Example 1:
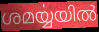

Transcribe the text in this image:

ശമൎയ്യയിൽ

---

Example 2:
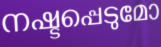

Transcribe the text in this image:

നഷ്ടപ്പെടുമോ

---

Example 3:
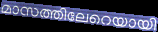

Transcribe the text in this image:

മാസത്തിലേറെയായി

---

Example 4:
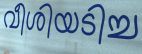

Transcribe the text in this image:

വീശിയടിച്ച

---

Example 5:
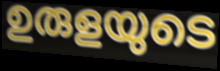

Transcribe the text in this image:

ഉരുളയുടെ